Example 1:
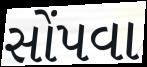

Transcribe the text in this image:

સોંપવા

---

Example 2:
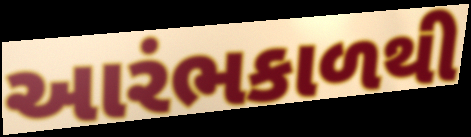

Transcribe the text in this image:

આરંભકાળથી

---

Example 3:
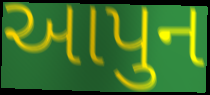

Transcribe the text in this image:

આપુન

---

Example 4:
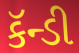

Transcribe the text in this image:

કૅન્ડી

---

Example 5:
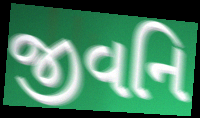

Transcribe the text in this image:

જીવનિ